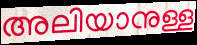
അലിയാനുള്ള